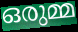
ഒരുമ്മ